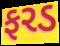
ફરડ